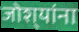
जोश्यांना